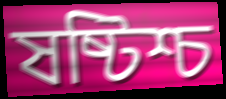
ষষ্টিশ্চ